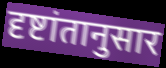
दृष्टांतानुसार